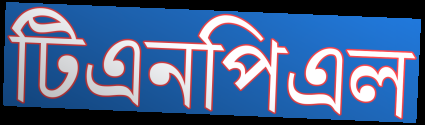
টিএনপিএল